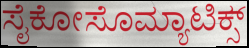
ಸೈಕೋಸೊಮ್ಯಾಟಿಕ್ಸ್